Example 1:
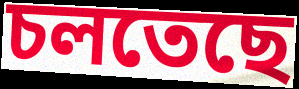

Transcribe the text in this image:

চলতেছে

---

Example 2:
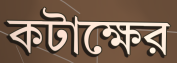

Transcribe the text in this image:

কটাক্ষের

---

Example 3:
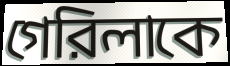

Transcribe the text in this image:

গেরিলাকে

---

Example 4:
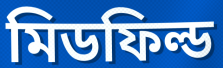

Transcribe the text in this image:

মিডফিল্ড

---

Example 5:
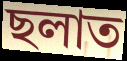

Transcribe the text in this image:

ছলাত